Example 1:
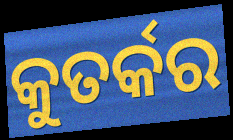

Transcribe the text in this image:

କୁତର୍କର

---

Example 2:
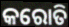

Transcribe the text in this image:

କରୋତି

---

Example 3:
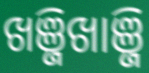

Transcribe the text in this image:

ଖଞ୍ଜିଖାଞ୍ଜି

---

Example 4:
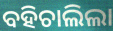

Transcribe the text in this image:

ବହିଚାଲିଲା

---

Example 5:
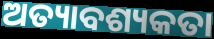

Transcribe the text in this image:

ଅତ୍ୟାବଶ୍ୟକତା